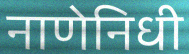
नाणेनिधी